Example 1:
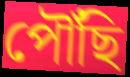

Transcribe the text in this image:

পৌঁছি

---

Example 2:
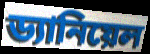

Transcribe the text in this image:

ড্যানিয়েল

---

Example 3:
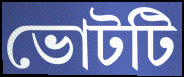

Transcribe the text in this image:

ভোটটি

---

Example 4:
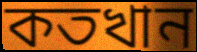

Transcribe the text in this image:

কতখান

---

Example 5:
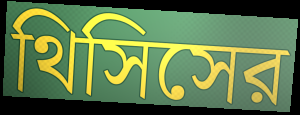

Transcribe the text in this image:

থিসিসের